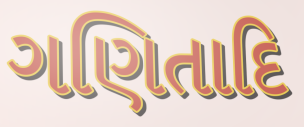
ગણિતાદિ